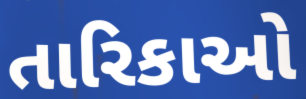
તારિકાઓ